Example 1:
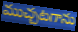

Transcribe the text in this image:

ముచ్చటగాను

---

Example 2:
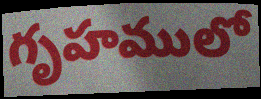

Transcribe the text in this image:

గృహములో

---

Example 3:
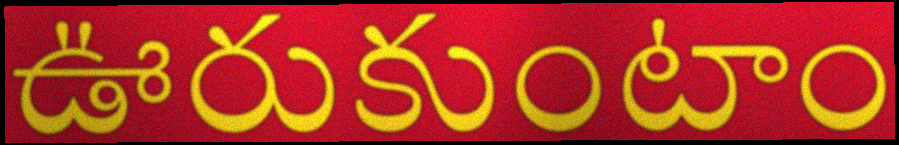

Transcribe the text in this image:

ఊరుకుంటాం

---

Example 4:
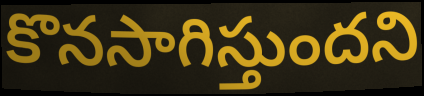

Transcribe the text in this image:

కొనసాగిస్తుందని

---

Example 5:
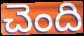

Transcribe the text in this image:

చెంది